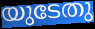
യുടേതു